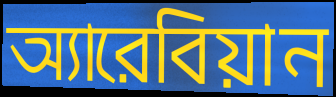
অ্যারেবিয়ান